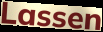
Lassen